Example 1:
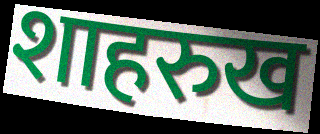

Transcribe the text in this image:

शाहरुख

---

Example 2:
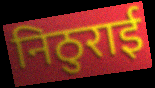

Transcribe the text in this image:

निठुराई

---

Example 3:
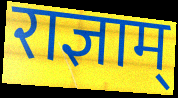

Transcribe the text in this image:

राज्ञाम्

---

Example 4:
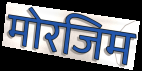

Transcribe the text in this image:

मोरजिम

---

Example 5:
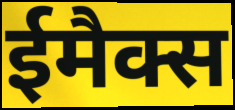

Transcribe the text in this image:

ईमैक्स